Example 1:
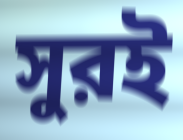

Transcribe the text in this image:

সুরই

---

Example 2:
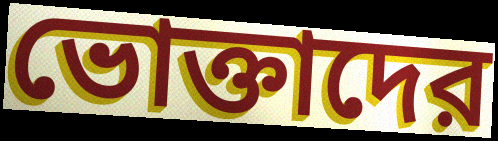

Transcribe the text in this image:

ভোক্তাদের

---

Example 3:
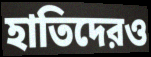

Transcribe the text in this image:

হাতিদেরও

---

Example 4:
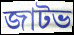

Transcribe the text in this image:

জাটভ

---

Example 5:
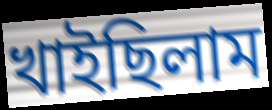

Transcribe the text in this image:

খাইছিলাম